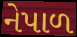
નેપાળ